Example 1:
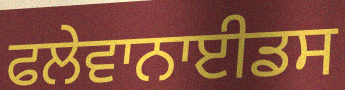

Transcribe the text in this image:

ਫਲੇਵਾਨਾਈਡਸ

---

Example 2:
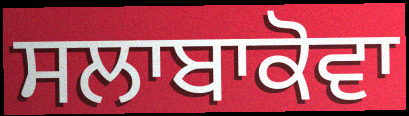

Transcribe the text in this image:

ਸਲਾਬਾਕੋਵਾ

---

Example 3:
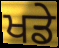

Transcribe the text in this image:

ਖਡੇ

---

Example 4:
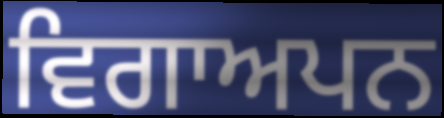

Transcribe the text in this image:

ਵਿਗਾਅਪਨ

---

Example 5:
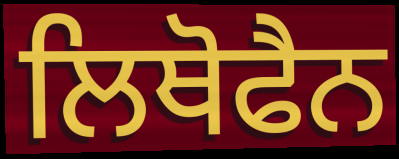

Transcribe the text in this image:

ਲਿਥੋਫੈਨ